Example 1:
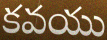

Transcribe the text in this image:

కవయు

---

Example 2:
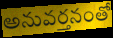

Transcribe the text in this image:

అనువర్తనంతో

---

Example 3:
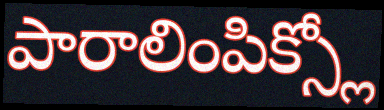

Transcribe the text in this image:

పారాలింపిక్స్లో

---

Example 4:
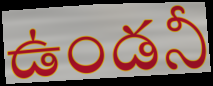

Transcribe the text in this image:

ఉండనీ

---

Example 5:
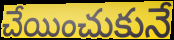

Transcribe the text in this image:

చేయించుకునే